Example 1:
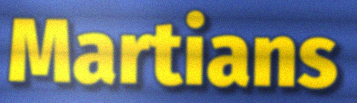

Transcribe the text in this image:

Martians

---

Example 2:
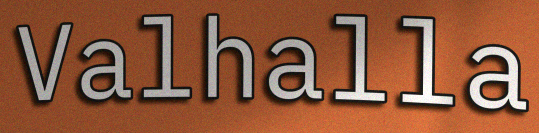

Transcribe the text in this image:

Valhalla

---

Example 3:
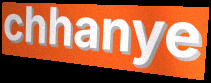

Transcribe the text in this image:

chhanye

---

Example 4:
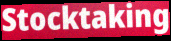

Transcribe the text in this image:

Stocktaking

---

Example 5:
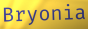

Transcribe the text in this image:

Bryonia